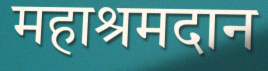
महाश्रमदान